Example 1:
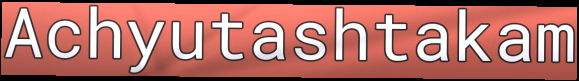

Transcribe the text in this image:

Achyutashtakam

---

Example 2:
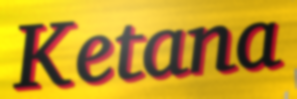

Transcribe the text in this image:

Ketana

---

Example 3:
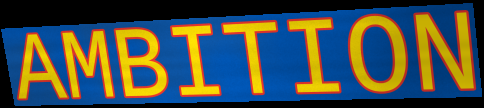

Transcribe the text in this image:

AMBITION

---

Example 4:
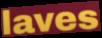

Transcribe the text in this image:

laves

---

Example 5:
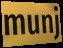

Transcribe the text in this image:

munj